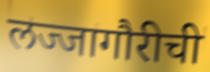
लज्जागौरीची